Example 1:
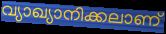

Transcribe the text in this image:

വ്യാഖ്യാനിക്കലാണ്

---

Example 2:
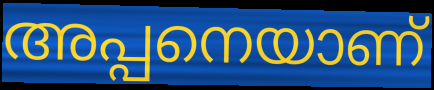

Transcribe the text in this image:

അപ്പനെയാണ്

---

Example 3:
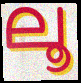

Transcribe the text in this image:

ലൂ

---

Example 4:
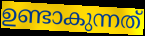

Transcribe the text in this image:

ഉണ്ടാകുന്നത്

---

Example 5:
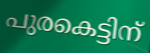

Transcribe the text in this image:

പുരകെട്ടിന്